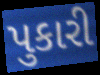
પુકારી